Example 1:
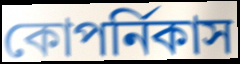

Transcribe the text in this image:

কোপর্নিকাস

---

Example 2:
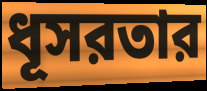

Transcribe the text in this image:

ধূসরতার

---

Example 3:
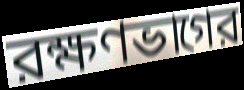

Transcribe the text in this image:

রক্ষণভাগের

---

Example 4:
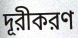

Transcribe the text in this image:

দূরীকরণ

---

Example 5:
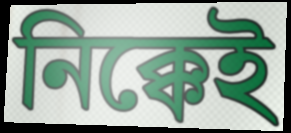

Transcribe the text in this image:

নিক্কেই